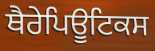
ਥੈਰੇਪਿਊਟਿਕਸ